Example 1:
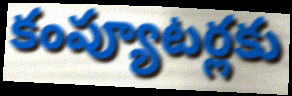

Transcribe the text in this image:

కంప్యూటర్లకు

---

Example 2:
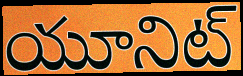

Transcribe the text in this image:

యూనిట్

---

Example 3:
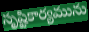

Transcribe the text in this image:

సృష్టికార్యమును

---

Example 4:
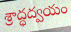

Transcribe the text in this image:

శ్రాద్ధద్వయం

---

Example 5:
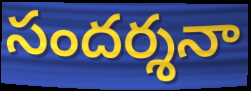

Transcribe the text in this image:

సందర్శనా